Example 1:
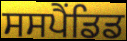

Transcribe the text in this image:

ਸਸਪੈਂਡਿਡ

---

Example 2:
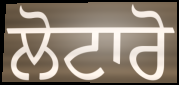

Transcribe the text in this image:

ਲੋਟਾਰੋ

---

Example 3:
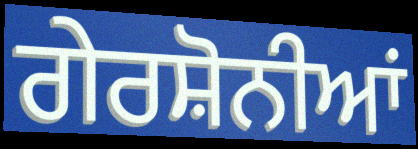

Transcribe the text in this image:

ਗੇਰਸ਼ੋਨੀਆਂ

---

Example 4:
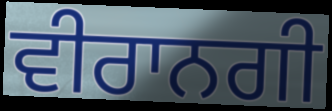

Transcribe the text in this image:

ਵੀਰਾਨਗੀ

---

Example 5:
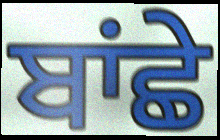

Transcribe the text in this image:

ਬਾਂਛੇ